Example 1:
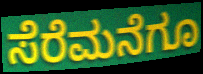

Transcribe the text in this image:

ಸೆರೆಮನೆಗೂ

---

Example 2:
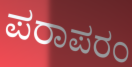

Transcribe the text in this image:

ಪರಾಪರಂ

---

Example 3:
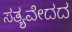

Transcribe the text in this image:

ಸತ್ಯವೇದದ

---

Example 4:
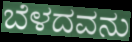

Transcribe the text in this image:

ಬೆಳದವನು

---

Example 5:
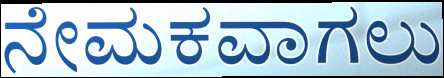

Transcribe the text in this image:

ನೇಮಕವಾಗಲು